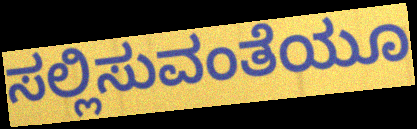
ಸಲ್ಲಿಸುವಂತೆಯೂ